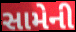
સામેની